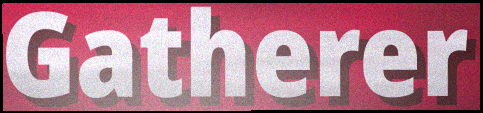
Gatherer